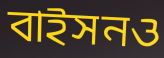
বাইসনও